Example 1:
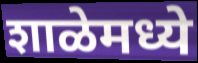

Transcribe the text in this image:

शाळेमध्ये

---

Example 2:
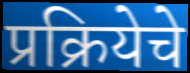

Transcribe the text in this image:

प्रक्रियेचे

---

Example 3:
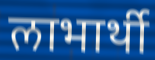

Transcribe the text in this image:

लाभार्थी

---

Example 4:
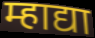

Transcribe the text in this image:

म्हाद्या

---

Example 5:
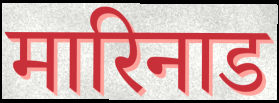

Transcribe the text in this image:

मारिनाड